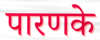
पारणके